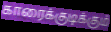
காரைக்குடிக்கும்